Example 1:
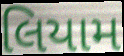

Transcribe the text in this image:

લિયામ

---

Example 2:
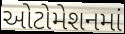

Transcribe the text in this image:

ઓટોમેશનમાં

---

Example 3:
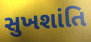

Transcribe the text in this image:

સુખશાંતિ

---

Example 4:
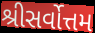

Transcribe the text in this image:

શ્રીસર્વોત્તમ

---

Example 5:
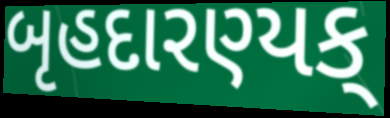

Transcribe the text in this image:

બૃહદારણ્યક્